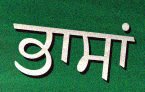
ਭਾਸਾਂ